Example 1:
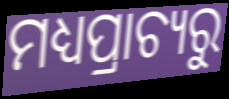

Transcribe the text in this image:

ମଧ୍ୟପ୍ରାଚ୍ୟରୁ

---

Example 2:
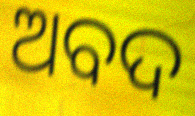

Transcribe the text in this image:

ଅବଦ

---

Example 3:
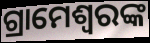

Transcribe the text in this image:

ଗ୍ରାମେଶ୍ୱରଙ୍କ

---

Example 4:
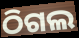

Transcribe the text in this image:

ଠିଗଲ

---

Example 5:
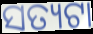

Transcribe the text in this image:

ସତ୍ୟଟା